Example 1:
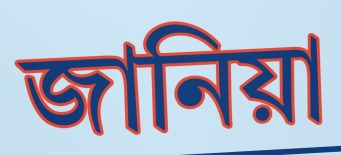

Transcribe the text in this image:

জানিয়া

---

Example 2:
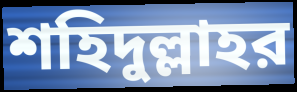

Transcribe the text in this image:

শহিদুল্লাহর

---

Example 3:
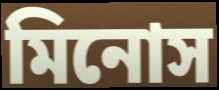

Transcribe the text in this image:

মিনোস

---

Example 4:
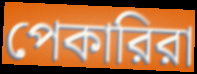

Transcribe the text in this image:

পেকারিরা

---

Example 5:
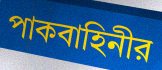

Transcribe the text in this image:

পাকবাহিনীর